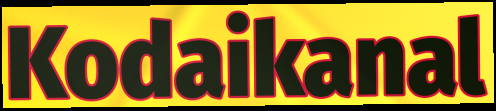
Kodaikanal